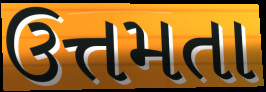
ઉત્તમતા